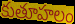
కుతూహలం